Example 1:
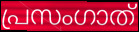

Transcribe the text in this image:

പ്രസംഗാത്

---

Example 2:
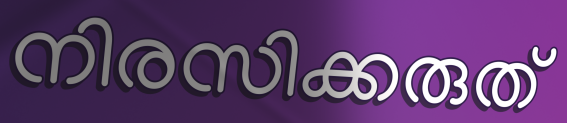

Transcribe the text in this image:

നിരസിക്കരുത്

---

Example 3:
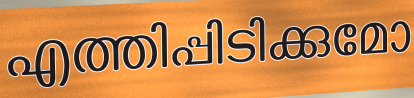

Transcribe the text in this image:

എത്തിപ്പിടിക്കുമോ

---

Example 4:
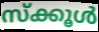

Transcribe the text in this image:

സ്ക്കൂൾ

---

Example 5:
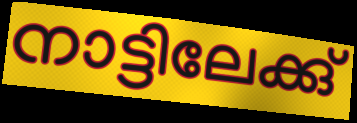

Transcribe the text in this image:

നാട്ടിലേക്കു്